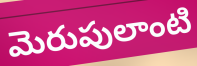
మెరుపులాంటి